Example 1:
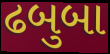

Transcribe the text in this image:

ઢબુબા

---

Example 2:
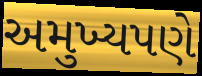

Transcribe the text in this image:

અમુખ્યપણે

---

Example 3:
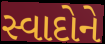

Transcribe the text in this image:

સ્વાદોને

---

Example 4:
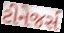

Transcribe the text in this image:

ટીનેજર્સ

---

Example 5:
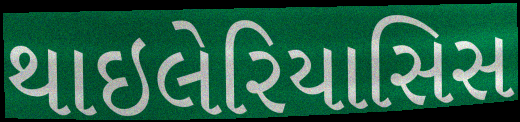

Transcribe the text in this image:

થાઇલેરિયાસિસ